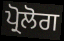
ਪ੍ਰੋਲੋਗ